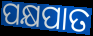
ପକ୍ଷପାତ